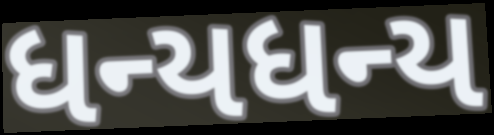
ધન્યધન્ય